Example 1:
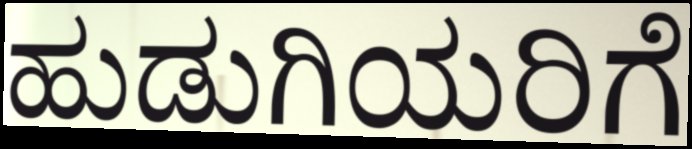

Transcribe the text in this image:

ಹುಡುಗಿಯರಿಗೆ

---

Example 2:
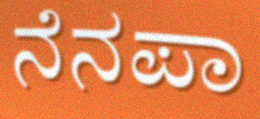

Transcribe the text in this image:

ನೆನಪಾ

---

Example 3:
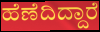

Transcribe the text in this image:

ಹೆಣೆದಿದ್ದಾರೆ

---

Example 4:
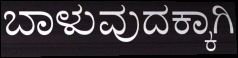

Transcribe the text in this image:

ಬಾಳುವುದಕ್ಕಾಗಿ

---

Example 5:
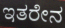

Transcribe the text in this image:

ಇತರೇನ